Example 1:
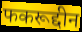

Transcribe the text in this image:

फकरूद्दीन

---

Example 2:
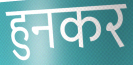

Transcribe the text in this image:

हुनकर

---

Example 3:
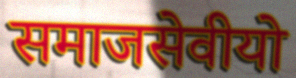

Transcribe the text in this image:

समाजसेवीयो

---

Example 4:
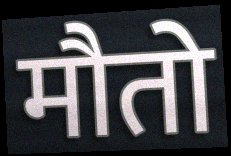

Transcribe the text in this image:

मौतो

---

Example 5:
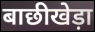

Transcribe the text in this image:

बाछीखेड़ा